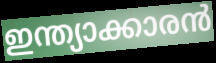
ഇന്ത്യാക്കാരൻ